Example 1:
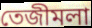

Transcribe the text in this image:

তেজীমলা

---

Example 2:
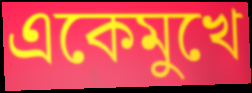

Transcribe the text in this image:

একেমুখে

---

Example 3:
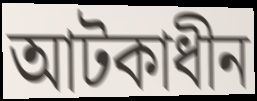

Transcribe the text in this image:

আটকাধীন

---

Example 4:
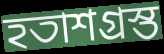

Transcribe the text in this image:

হতাশগ্ৰস্ত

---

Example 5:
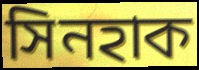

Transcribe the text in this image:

সিনহাক